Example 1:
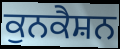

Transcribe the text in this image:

ਕੁਨਕੈਸ਼ਨ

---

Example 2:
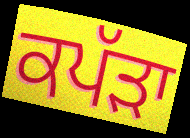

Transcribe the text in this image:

ਕਪੱੜਾ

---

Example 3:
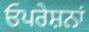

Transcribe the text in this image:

ਓਪਰੇਸ਼ਨਾਂ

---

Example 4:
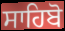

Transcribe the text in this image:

ਸਾਹਿਬੋ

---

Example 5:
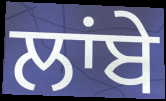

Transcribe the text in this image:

ਲਾਂਬੇ